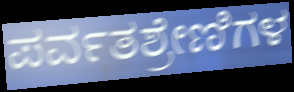
ಪರ್ವತಶ್ರೇಣಿಗಳ